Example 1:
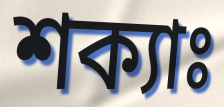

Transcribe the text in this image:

শক্যাঃ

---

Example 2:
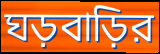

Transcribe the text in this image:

ঘড়বাড়ির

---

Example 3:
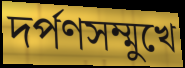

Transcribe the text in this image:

দর্পণসম্মুখে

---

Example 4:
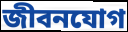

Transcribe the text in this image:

জীবনযোগ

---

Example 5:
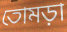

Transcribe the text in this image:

তোমড়া